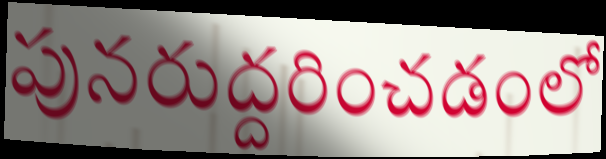
పునరుద్దరించడంలో